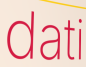
dati